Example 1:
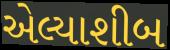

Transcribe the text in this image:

એલ્યાશીબ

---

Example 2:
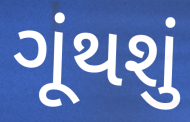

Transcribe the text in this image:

ગૂંથશું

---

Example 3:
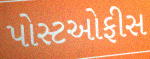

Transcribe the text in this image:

પોસ્ટઓફીસ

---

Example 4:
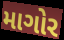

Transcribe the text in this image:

માગોર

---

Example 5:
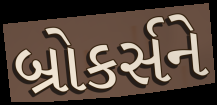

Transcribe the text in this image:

બ્રોકર્સને